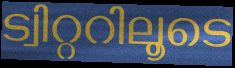
ട്വിറ്ററിലൂടെ